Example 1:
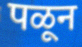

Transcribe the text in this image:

पळून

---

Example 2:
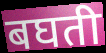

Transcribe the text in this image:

बघती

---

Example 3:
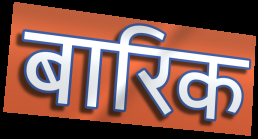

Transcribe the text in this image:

बारिक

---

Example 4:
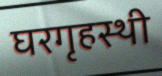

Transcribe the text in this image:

घरगृहस्थी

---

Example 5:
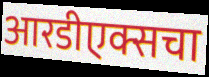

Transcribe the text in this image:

आरडीएक्सचा